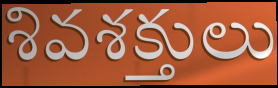
శివశక్తులు